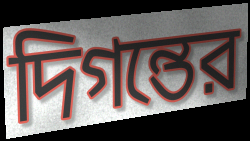
দিগন্তের